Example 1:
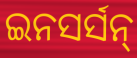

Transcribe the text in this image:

ଇନସର୍ସନ୍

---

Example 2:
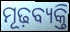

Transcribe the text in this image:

ମୂଢ଼ବ୍ୟକ୍ତି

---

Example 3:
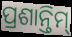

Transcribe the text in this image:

ପ୍ରଶାନ୍ତିମ୍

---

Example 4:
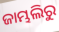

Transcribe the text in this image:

ଜାମ୍ଭଲିରୁ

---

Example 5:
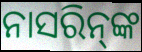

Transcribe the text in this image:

ନାସରିନ୍‌ଙ୍କ